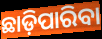
ଛାଡ଼ିପାରିବା